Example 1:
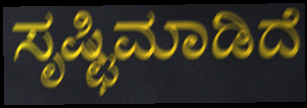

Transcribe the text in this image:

ಸೃಷ್ಟಿಮಾಡಿದೆ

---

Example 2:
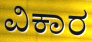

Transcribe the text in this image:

ವಿಕಾರ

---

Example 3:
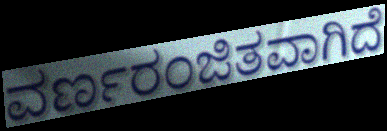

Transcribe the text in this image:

ವರ್ಣರಂಜಿತವಾಗಿದೆ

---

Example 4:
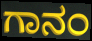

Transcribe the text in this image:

ಗಾನಂ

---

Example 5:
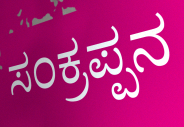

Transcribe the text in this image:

ಸಂಕ್ರಪ್ಪನ